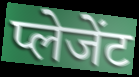
प्लेजेंट